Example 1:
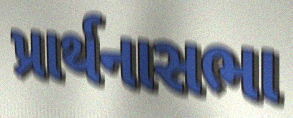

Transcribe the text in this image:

પ્રાર્થનાસભા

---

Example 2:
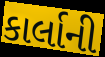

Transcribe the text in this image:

કાર્લાની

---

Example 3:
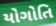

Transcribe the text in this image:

યોગોતિ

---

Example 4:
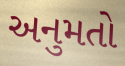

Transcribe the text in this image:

અનુમતો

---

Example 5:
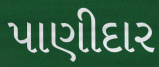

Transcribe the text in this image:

પાણીદાર